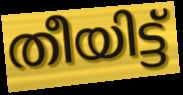
തീയിട്ട്